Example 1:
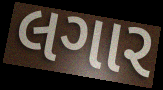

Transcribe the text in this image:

લગાર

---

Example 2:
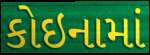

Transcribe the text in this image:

કોઇનામાં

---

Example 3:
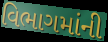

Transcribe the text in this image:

વિભાગમાંની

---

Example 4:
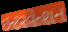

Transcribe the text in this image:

ઇન્ટરવેન્શન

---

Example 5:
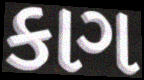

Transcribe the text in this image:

કાગ